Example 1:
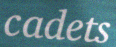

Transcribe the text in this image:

cadets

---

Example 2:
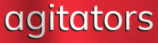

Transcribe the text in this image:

agitators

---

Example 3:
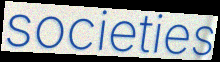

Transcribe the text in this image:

societies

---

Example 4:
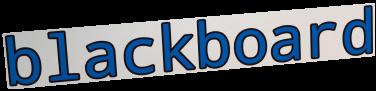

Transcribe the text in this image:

blackboard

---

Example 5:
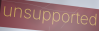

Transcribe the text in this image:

unsupported